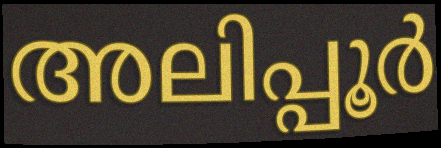
അലിപ്പൂർ